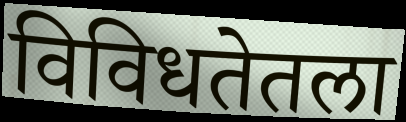
विविधतेतला